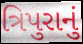
ત્રિપુરાનું